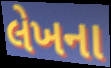
લેખના